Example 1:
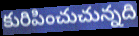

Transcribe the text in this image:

కురిపించుచున్నది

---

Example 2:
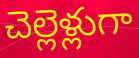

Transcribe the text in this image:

చెల్లెళ్లుగా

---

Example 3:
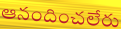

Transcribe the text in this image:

ఆనందించలేరు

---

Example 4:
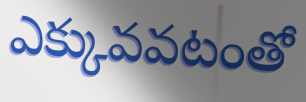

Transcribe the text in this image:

ఎక్కువవటంతో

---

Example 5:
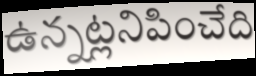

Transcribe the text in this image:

ఉన్నట్లనిపించేది